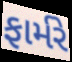
ફાર્મરે